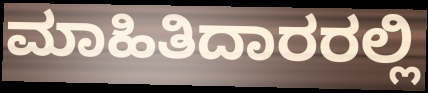
ಮಾಹಿತಿದಾರರಲ್ಲಿ